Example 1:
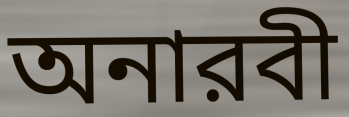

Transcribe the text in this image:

অনারবী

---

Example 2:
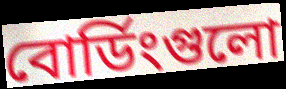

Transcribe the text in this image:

বোর্ডিংগুলো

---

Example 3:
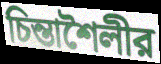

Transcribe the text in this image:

চিন্তাশৈলীর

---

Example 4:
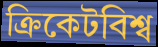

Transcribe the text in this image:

ক্রিকেটবিশ্ব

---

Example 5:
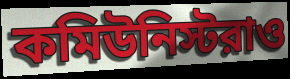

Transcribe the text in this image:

কমিউনিস্টরাও